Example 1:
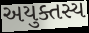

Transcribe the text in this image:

અયુક્તસ્ય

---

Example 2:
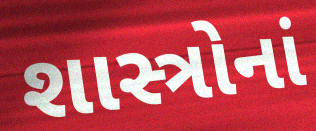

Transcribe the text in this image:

શાસ્ત્રોનાં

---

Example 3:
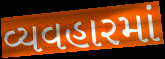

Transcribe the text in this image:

વ્યવહારમાં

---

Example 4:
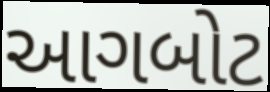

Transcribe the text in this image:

આગબોટ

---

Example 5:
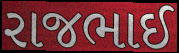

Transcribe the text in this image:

રાજભાઈ